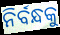
ନିର୍ବନ୍ଧକୁ